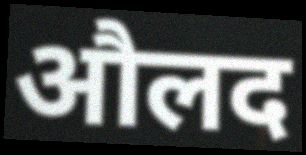
औलद